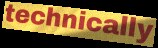
technically